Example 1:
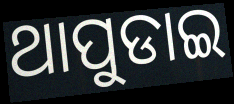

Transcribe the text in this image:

ଥାପୁଡାଇ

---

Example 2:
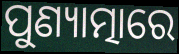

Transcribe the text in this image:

ପୁଣ୍ୟାତ୍ମାରେ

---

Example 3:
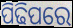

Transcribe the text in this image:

ପିଢିପରେ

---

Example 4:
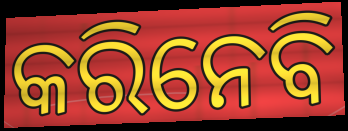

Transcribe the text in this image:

କରିନେବି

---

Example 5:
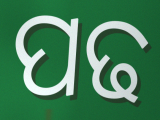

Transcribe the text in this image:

ପଢ